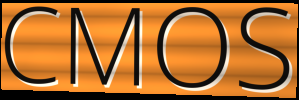
CMOS